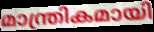
മാന്ത്രികമായി